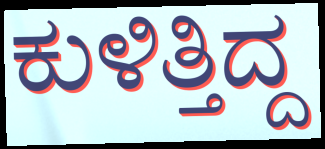
ಕುಳಿತ್ತಿದ್ದ